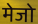
मेजो